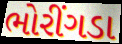
ભોરીંગડા